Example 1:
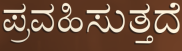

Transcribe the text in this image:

ಪ್ರವಹಿಸುತ್ತದೆ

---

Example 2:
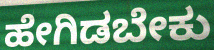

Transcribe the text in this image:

ಹೇಗಿಡಬೇಕು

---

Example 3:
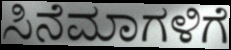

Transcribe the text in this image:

ಸಿನೆಮಾಗಳಿಗೆ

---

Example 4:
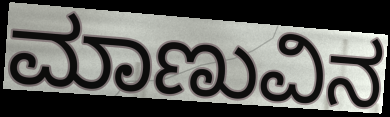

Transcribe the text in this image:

ಮಾಣುವಿನ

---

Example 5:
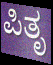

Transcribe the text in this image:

ಪಿತೃ